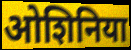
ओशिनिया